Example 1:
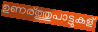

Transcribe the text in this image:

ഉണര്ത്തുപാട്ടുകള്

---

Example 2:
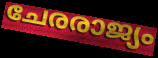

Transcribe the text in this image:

ചേരരാജ്യം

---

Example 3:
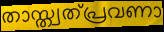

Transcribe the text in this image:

താസ്ത്വത്പ്രവണാ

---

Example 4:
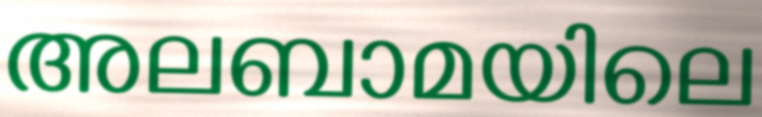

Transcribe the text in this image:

അലബാമയിലെ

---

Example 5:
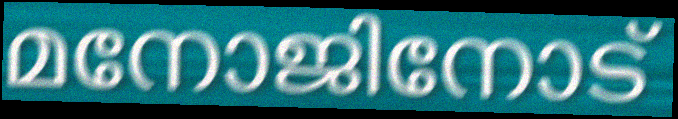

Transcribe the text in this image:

മനോജിനോട്